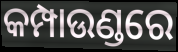
କମ୍ପାଉଣ୍ଡରେ